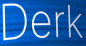
Derk